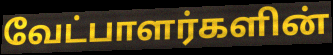
வேட்பாளர்களின்